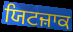
ਯਿਟਜ਼ਾਕ